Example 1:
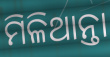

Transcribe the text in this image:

ମିଳିଥାନ୍ତା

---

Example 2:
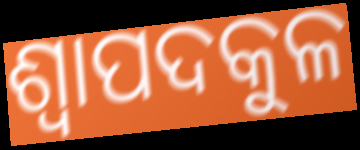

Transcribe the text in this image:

ଶ୍ୱାପଦକୁଳ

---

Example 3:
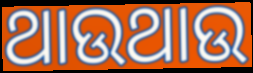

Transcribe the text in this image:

ଥାଉଥାଉ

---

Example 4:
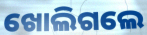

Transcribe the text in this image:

ଖୋଲିଗଲେ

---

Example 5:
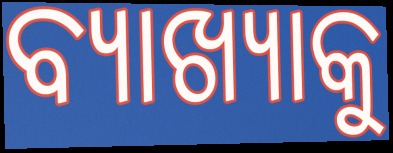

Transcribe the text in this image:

ବ୍ୟାଖ୍ୟାକୁ